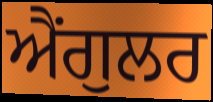
ਐਂਗੁਲਰ